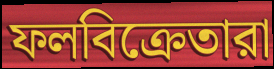
ফলবিক্রেতারা